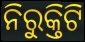
ନିରୁକ୍ତିଟି